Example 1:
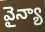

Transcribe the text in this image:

వైన్యా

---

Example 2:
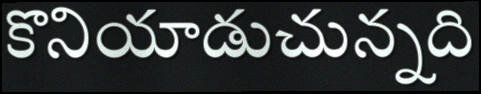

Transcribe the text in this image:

కొనియాడుచున్నది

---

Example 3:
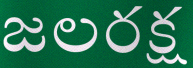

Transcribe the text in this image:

జలరక్ష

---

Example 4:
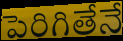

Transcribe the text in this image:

పెరిగితేనే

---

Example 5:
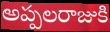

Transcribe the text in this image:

అప్పలరాజుకి